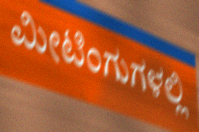
ಮೀಟಿಂಗುಗಳಲ್ಲಿ